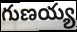
గుణయ్య